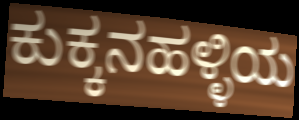
ಕುಕ್ಕನಹಳ್ಳಿಯ